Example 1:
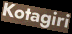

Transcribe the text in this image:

Kotagiri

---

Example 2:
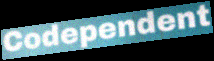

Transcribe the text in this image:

Codependent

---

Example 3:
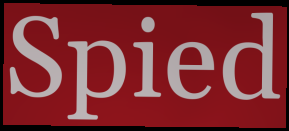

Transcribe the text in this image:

Spied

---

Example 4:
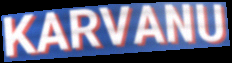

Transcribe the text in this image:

KARVANU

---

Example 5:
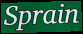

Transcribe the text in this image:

Sprain